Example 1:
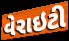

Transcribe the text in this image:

વેરાઇટી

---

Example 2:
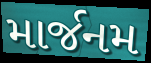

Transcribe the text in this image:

માર્જનમ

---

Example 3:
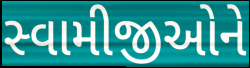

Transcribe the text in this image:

સ્વામીજીઓને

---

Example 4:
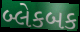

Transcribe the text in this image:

બ્લેકબક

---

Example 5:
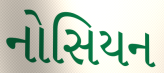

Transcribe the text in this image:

નોસિયન